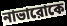
নাভারোকে